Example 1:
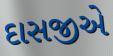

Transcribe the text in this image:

દાસજીએ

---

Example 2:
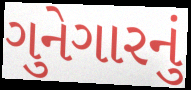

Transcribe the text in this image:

ગુનેગારનું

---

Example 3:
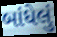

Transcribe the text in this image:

બાંધેલું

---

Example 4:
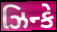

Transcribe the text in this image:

ઝિન્કે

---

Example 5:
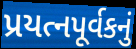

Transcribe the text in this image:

પ્રયત્નપૂર્વકનું